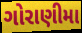
ગોરાણીમા